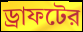
ড্রাফটের